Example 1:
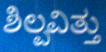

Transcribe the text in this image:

ಶಿಲ್ಪವಿತ್ತು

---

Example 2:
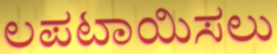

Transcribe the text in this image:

ಲಪಟಾಯಿಸಲು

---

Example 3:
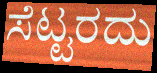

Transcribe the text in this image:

ಸೆಟ್ಟರದು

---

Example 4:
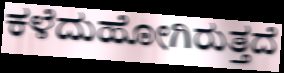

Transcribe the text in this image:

ಕಳೆದುಹೋಗಿರುತ್ತದೆ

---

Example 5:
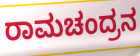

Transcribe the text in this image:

ರಾಮಚಂದ್ರನ